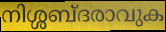
നിശ്ശബ്ദരാവുക